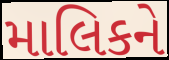
માલિકને